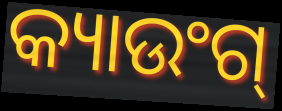
କ୍ୟାଉଂଗ୍